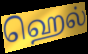
ஹெல்